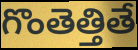
గొంతెత్తితే